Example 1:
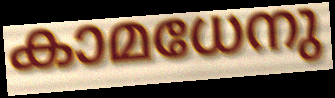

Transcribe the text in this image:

കാമധേനു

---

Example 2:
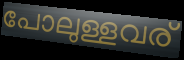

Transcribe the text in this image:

പോലുള്ളവര്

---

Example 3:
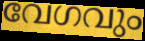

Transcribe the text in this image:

വേഗവും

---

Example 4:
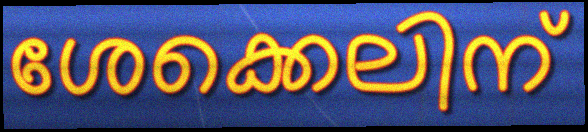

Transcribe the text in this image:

ശേക്കെലിന്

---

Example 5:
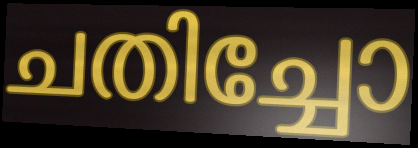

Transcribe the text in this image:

ചതിച്ചോ